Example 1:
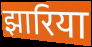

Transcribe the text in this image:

झारिया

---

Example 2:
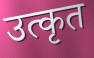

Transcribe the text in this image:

उत्कृत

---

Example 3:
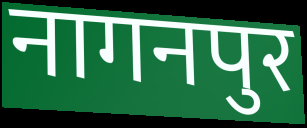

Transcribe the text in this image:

नागनपुर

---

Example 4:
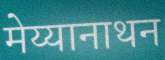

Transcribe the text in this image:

मेय्यानाथन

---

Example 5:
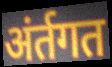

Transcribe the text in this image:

अंर्तगत